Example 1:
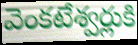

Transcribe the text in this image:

వెంకటేశ్వర్లుకి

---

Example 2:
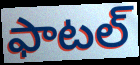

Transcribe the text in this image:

ఫాటల్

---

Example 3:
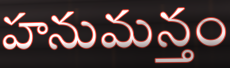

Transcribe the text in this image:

హనుమన్తం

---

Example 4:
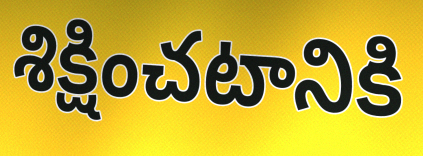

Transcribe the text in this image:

శిక్షించటానికి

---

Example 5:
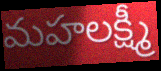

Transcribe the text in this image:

మహలక్ష్మీ